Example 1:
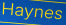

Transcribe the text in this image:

Haynes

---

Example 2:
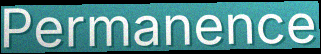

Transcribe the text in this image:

Permanence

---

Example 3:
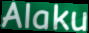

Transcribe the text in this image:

Alaku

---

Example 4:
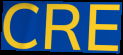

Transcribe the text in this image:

CRE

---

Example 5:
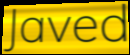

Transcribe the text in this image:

Javed